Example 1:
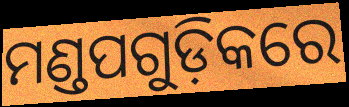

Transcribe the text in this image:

ମଣ୍ଡପଗୁଡ଼ିକରେ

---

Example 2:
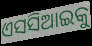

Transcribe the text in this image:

ଏସସିଆଇକୁ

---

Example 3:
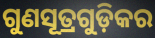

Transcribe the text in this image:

ଗୁଣସୂତ୍ରଗୁଡ଼ିକର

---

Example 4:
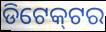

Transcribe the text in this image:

ଡିଟେକ୍‌ଟର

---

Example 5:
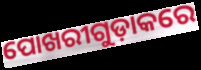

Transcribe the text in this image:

ପୋଖରୀଗୁଡ଼ାକରେ